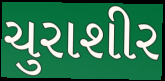
ચુરાશીર